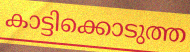
കാട്ടിക്കൊടുത്ത